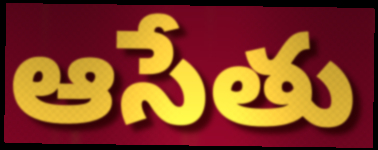
ఆసేతు